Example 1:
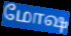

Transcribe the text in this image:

மோஷ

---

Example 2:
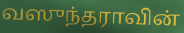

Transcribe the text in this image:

வஸுந்தராவின்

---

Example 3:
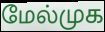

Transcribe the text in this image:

மேல்முக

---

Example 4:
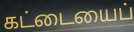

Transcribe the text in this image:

கட்டையைப்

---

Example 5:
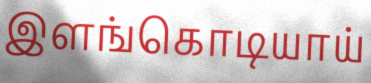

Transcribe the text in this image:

இளங்கொடியாய்